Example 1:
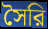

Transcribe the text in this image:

সৈরি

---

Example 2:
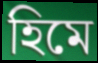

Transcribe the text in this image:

হিমে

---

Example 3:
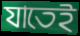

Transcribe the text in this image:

যাতেই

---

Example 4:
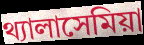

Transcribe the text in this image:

থ্যালাসেমিয়া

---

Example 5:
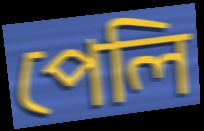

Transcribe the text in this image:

পেলি